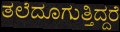
ತಲೆದೂಗುತ್ತಿದ್ದರೆ